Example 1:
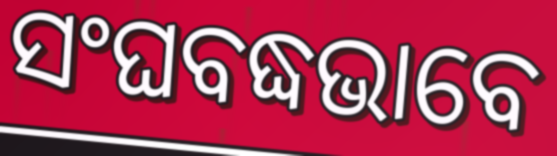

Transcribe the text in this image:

ସଂଘବଦ୍ଧଭାବେ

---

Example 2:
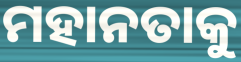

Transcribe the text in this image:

ମହାନତାକୁ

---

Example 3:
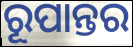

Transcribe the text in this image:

ରୂପାନ୍ତର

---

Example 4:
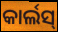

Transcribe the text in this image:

କାର୍ଲସ୍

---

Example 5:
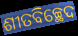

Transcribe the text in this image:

ଶୀତବିଚ୍ଛେଦ